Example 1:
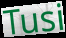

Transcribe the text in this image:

Tusi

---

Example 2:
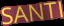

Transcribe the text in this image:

SANTI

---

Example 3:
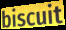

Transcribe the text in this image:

biscuit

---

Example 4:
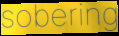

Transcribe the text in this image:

sobering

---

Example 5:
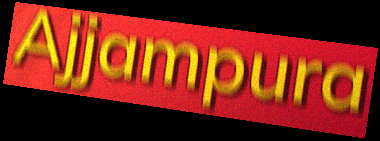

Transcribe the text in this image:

Ajjampura